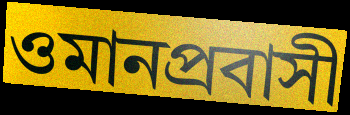
ওমানপ্রবাসী